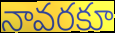
నావరకూ